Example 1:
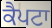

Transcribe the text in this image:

ਕੈਪਟਾ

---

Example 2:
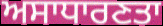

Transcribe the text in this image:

ਅਸਾਧਾਰਣਤਾ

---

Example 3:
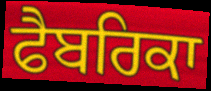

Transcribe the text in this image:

ਫੈਬਰਿਕਾ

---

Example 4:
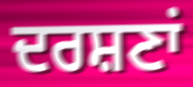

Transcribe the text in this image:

ਦਰਸ਼ਣਾਂ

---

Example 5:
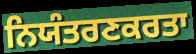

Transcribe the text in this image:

ਨਿਯੰਤਰਣਕਰਤਾ